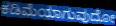
ಕಡಿಮೆಯಾಗುವುದೋ